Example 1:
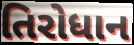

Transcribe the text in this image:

તિરોધાન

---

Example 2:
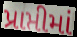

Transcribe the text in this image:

પ્રાપ્તીમાં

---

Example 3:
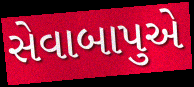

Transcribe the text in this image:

સેવાબાપુએ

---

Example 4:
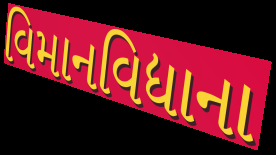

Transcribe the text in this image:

વિમાનવિદ્યાના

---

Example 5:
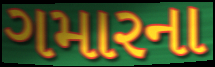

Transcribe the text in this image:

ગમારના